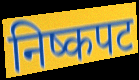
निष्कपट